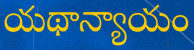
యథాన్యాయం